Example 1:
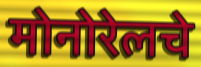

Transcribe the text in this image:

मोनोरेलचे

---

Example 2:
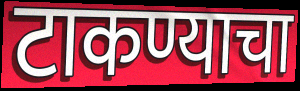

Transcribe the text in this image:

टाकण्याचा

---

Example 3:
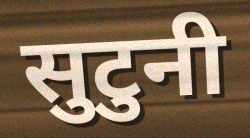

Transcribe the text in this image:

सुटुनी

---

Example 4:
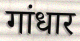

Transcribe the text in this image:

गांधार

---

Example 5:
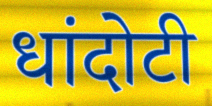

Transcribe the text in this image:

धांदोटी